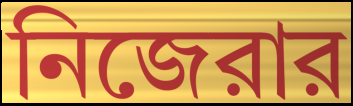
নিজেরার